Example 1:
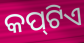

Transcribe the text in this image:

କପ୍‍ଟିଏ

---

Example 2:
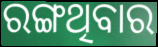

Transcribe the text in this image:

ରଙ୍ଗଥିବାର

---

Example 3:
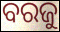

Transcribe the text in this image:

ବରଜୁ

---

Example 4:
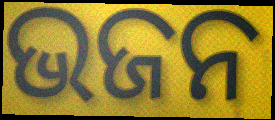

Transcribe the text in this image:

ଭଜନ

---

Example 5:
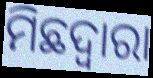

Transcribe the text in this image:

ମିଛଦ୍ଵାରା